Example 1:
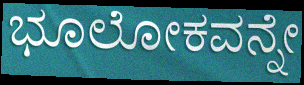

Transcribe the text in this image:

ಭೂಲೋಕವನ್ನೇ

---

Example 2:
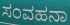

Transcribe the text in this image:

ಸಂವಹನಾ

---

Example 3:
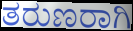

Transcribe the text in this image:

ತರುಣರಾಗಿ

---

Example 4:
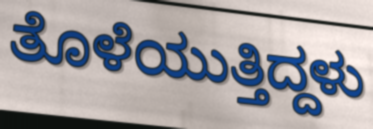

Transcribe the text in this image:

ತೊಳೆಯುತ್ತಿದ್ದಳು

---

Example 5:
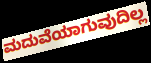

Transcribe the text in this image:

ಮದುವೆಯಾಗುವುದಿಲ್ಲ